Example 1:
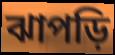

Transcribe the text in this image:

ঝাপড়ি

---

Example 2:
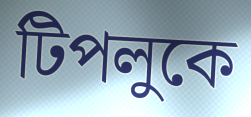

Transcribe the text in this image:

টিপলুকে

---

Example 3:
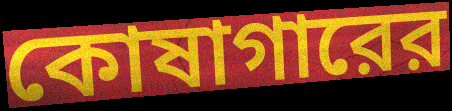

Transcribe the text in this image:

কোষাগারের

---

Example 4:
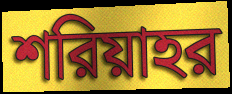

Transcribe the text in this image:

শরিয়াহর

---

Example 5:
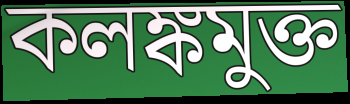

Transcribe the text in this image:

কলঙ্কমুক্ত